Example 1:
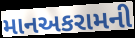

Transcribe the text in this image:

માનઅકરામની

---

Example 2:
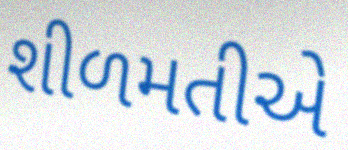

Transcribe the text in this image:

શીળમતીએ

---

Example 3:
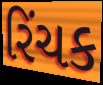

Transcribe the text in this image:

રિંચક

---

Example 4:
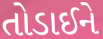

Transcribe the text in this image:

તોડાઈને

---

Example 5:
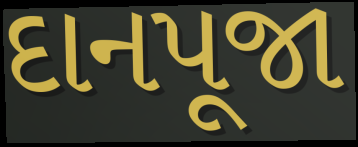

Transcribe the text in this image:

દાનપૂજા